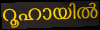
റൂഹായിൽ